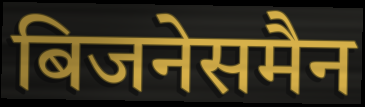
बिजनेसमैन